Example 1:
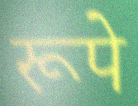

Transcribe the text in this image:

रूपे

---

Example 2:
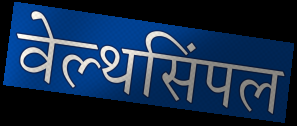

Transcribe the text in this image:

वेल्थसिंपल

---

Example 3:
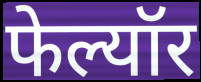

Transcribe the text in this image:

फेल्यॉर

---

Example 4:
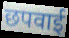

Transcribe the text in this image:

छपवाई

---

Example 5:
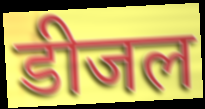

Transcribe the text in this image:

डीजल